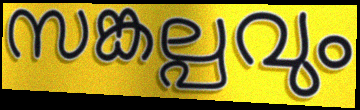
സങ്കല്പവും